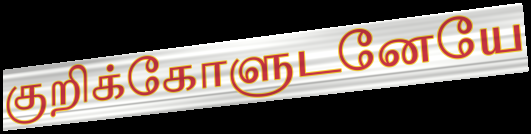
குறிக்கோளுடனேயே